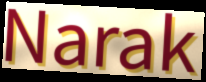
Narak